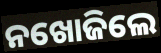
ନଖୋଜିଲେ